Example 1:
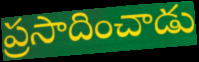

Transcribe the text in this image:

ప్రసాదించాడు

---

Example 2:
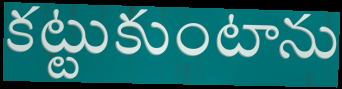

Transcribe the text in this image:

కట్టుకుంటాను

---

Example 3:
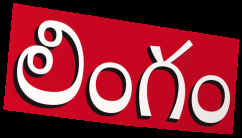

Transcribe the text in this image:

లింగం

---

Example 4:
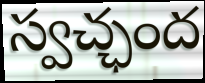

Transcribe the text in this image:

స్వచ్ఛంద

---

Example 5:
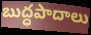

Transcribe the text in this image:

బుద్ధపాదాలు